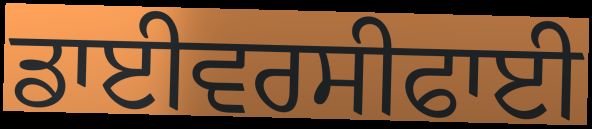
ਡਾਈਵਰਸੀਫਾਈ